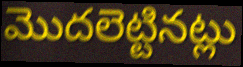
మొదలెట్టినట్లు